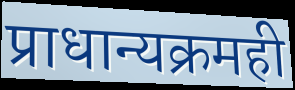
प्राधान्यक्रमही